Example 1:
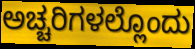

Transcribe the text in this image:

ಅಚ್ಚರಿಗಳಲ್ಲೊಂದು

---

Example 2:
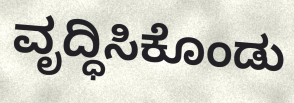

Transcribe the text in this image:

ವೃದ್ಧಿಸಿಕೊಂಡು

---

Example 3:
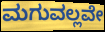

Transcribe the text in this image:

ಮಗುವಲ್ಲವೇ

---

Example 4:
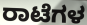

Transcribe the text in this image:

ರಾಟೆಗಳ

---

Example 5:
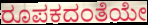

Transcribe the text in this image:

ರೂಪಕದಂತೆಯೇ